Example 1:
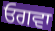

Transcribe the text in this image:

ਓਗਵਾ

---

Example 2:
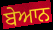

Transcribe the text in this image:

ਬੇਆਨ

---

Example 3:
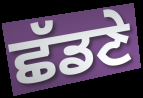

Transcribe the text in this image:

ਛੱਡਣੇ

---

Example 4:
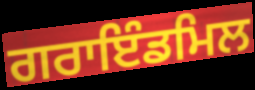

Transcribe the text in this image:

ਗਰਾਇੰਡਮਿਲ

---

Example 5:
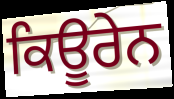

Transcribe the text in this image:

ਕਿਊਰੇਨ